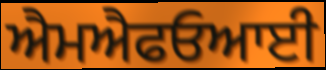
ਐਮਐਫਓਆਈ